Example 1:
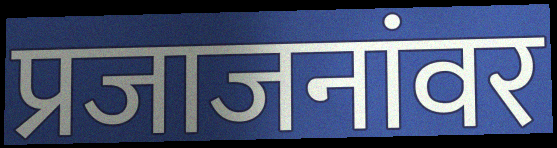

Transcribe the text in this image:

प्रजाजनांवर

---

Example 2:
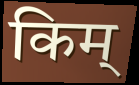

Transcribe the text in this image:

किम्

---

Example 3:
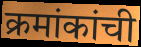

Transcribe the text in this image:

क्रमांकांची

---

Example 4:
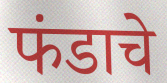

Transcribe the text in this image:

फंडाचे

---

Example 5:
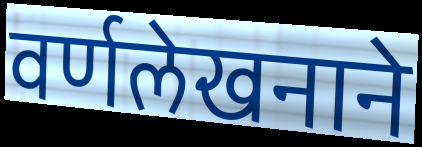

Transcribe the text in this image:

वर्णलेखनाने